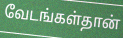
வேடங்கள்தான்